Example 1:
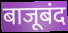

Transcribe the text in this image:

बाजूबंद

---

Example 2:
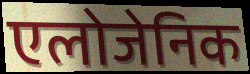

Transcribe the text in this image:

एलोजेनिक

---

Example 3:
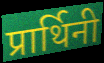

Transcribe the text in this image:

प्रार्थिनी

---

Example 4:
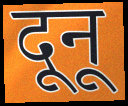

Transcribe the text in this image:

दूनू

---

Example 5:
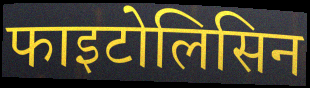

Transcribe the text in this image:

फाइटोलिसिन